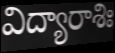
విద్యారాశిః